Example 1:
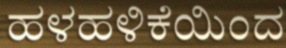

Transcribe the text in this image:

ಹಳಹಳಿಕೆಯಿಂದ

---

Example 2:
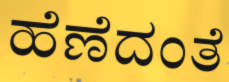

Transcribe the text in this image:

ಹೆಣೆದಂತೆ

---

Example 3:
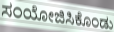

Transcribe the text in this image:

ಸಂಯೋಜಿಸಿಕೊಂಡು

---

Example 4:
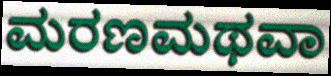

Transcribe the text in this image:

ಮರಣಮಥವಾ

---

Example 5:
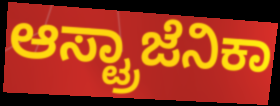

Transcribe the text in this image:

ಆಸ್ಟ್ರಾಜೆನಿಕಾ